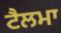
ਟੈਲਮਾ